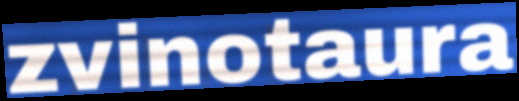
zvinotaura